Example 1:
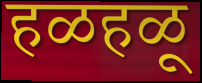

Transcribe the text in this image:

हळहळू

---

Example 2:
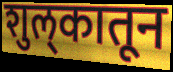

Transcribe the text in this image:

शुल्कातून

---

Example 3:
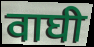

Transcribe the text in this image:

वाघी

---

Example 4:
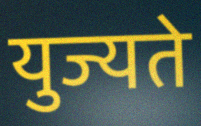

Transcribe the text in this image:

युज्यते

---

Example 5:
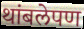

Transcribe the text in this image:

थांबलेपण